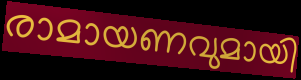
രാമായണവുമായി